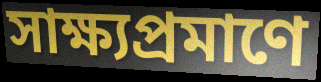
সাক্ষ্যপ্রমাণে